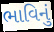
ભાવિનું